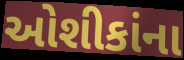
ઓશીકાંના